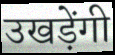
उखड़ेंगी